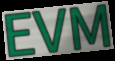
EVM